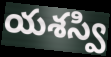
యశస్వి